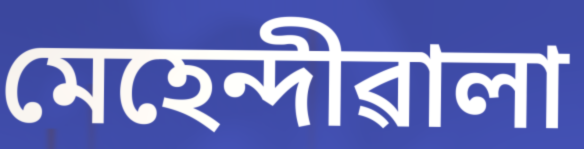
মেহেন্দীৱালা